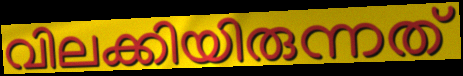
വിലക്കിയിരുന്നത്